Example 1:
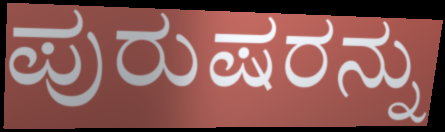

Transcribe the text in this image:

ಪುರುಷರನ್ನು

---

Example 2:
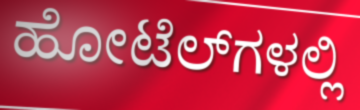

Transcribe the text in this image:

ಹೋಟೆಲ್‌ಗಳಲ್ಲಿ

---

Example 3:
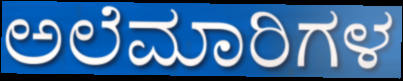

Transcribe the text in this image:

ಅಲೆಮಾರಿಗಳ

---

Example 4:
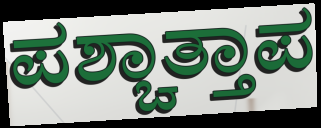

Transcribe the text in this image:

ಪಶ್ಚಾತ್ತಾಪ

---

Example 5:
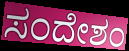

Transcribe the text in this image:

ಸಂದೇಶಂ